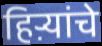
हिऱ्‍यांचे